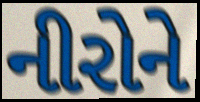
નીરોને